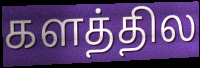
களத்தில